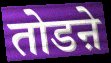
तोडऩे